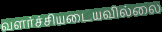
வளர்ச்சியடையவில்லை